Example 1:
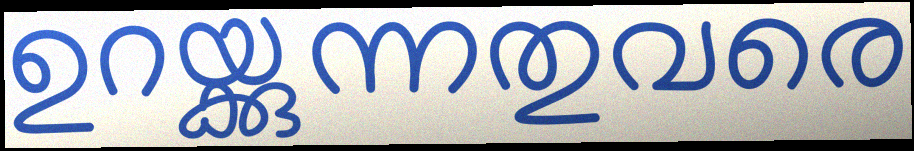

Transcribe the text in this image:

ഉറയ്ക്കുന്നതുവരെ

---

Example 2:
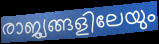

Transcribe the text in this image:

രാജ്യങ്ങളിലേയും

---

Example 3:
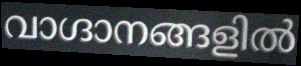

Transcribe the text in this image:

വാഗ്ദാനങ്ങളിൽ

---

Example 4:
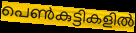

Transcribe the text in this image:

പെൺകുട്ടികളിൽ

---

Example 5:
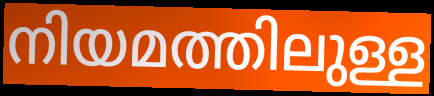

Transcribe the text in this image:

നിയമത്തിലുള്ള